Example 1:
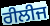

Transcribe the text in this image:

ਰੀਲੀਜ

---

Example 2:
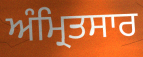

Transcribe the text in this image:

ਅੰਮ੍ਰਿਤਸਾਰ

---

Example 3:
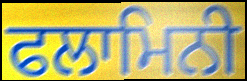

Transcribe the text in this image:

ਫਲਾਮਿਨੀ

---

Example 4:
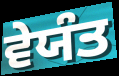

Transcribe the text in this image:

ਵੇਯੰਤ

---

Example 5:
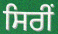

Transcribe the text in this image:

ਸਿਰੀਂ